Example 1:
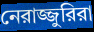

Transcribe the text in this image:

নেরাজ্জুরিরা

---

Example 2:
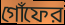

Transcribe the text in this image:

গোঁফের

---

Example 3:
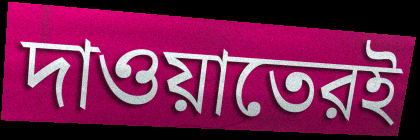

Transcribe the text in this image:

দাওয়াতেরই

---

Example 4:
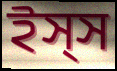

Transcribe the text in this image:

ইস্‌স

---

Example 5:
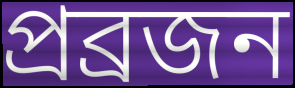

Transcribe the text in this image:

প্রব্রজন